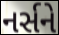
નર્સને